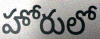
హోరులో